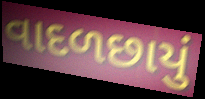
વાદળછાયું